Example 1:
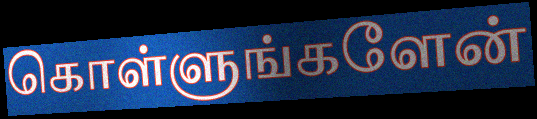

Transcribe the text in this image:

கொள்ளுங்களேன்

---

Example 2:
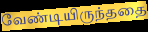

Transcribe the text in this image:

வேண்டியிருந்ததை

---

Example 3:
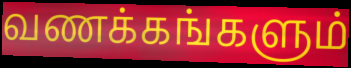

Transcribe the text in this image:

வணக்கங்களும்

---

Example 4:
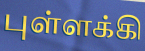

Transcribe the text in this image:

புள்ளக்கி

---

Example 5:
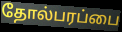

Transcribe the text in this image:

தோல்பரப்பை